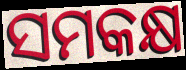
ସମକକ୍ଷ